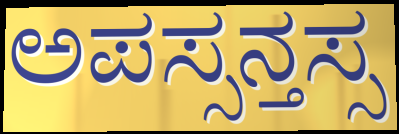
ಅಪಸ್ಸನ್ತಸ್ಸ